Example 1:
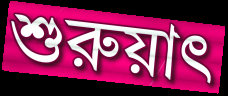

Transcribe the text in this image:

শুরুয়াৎ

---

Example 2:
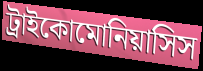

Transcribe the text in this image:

ট্রাইকোমোনিয়াসিস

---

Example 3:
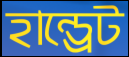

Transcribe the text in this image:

হান্ড্রেট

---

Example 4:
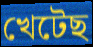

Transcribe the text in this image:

খেটেছ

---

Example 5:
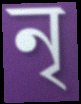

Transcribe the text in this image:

নৃ